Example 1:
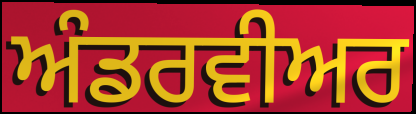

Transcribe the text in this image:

ਅੰਡਰਵੀਅਰ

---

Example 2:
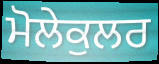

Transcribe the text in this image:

ਮੋਲੇਕੁਲਰ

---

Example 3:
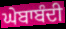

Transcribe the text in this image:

ਘੇਬਾਬੰਦੀ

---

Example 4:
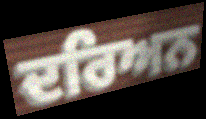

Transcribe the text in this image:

ਦਰਿਅਨ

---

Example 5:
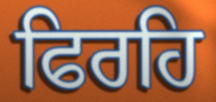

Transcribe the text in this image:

ਫਿਰਹਿ